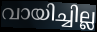
വായിച്ചില്ല